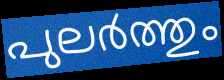
പുലർത്തും